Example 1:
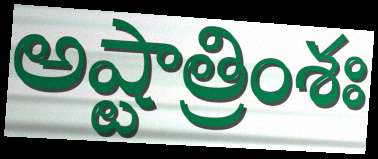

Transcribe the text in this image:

అష్టాత్రింశః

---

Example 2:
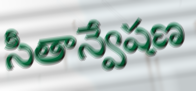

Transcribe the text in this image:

సీతాన్వేషణ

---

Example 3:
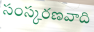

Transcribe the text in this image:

సంస్కరణవాది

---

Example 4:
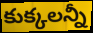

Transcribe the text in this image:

కుక్కలన్నీ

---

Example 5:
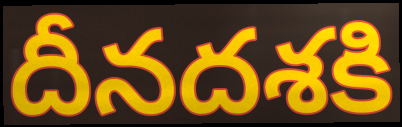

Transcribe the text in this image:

దీనదశకి